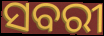
ସବରୀ